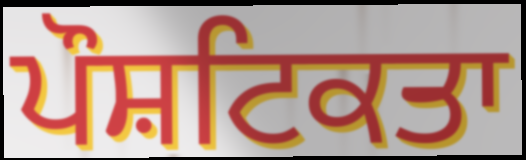
ਪੌਸ਼ਟਿਕਤਾ